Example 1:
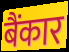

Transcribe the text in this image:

बैंकार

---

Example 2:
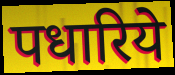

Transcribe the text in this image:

पधारिये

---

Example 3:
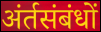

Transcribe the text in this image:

अंर्तसंबंधों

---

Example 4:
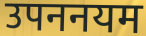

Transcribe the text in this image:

उपननयम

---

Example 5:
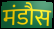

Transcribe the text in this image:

मंडौस